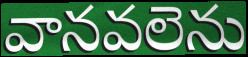
వానవలెను